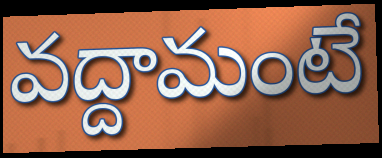
వద్దామంటే